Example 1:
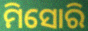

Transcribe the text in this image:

ମିସୋରି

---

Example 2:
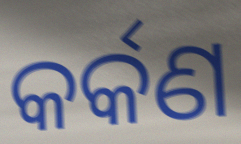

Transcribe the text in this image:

କର୍କଣ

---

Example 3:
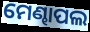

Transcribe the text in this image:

ମେଣ୍ଢାପଲ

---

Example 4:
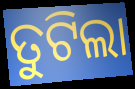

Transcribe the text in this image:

ତୁଟିଲା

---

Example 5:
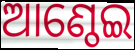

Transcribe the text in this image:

ଆଣ୍ଠେଇ